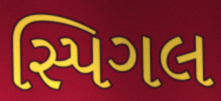
સ્પિગલ